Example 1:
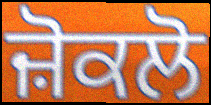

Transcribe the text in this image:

ਜ਼ੋਕਲੋ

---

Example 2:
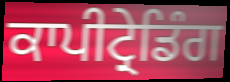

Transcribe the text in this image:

ਕਾਪੀਟ੍ਰੇਡਿੰਗ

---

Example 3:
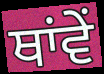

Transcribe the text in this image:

ਥਾਂਵੇਂ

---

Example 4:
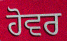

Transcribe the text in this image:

ਹੋਵਰ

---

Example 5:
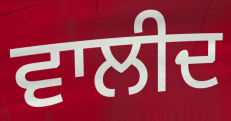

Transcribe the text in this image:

ਵਾਲੀਦ